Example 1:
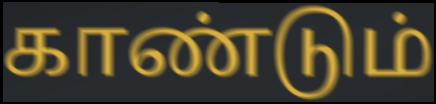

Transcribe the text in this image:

காண்டும்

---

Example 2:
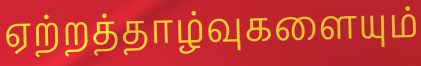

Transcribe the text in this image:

ஏற்றத்தாழ்வுகளையும்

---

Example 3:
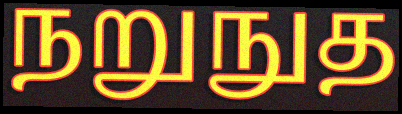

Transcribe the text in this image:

நறுநுத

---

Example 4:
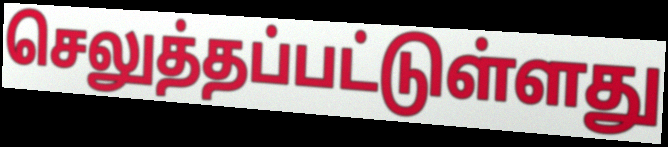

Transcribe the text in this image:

செலுத்தப்பட்டுள்ளது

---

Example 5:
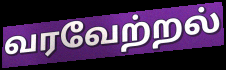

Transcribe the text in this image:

வரவேற்றல்